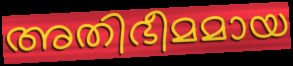
അതിഭീമമായ